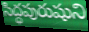
సిద్ధపురుషుని